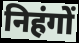
निहंगों